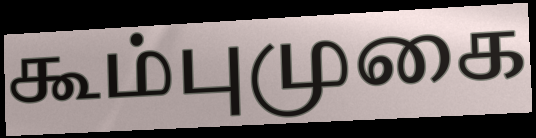
கூம்புமுகை